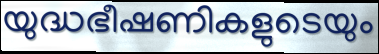
യുദ്ധഭീഷണികളുടെയും